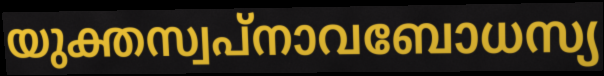
യുക്തസ്വപ്നാവബോധസ്യ